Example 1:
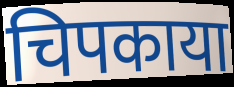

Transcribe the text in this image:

चिपकाया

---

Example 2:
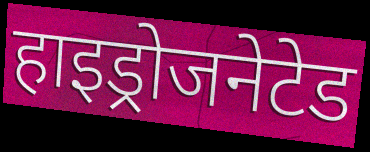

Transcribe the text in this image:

हाइड्रोजनेटेड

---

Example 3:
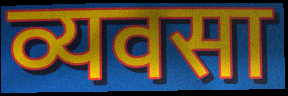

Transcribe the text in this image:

व्यवसा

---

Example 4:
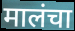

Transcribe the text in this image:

मालंचा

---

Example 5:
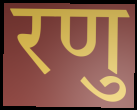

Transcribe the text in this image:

रणु